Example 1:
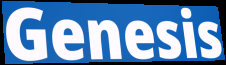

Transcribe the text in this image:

Genesis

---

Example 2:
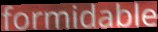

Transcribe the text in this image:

formidable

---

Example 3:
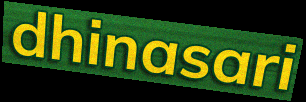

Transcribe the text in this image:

dhinasari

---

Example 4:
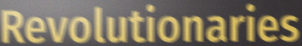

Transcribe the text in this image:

Revolutionaries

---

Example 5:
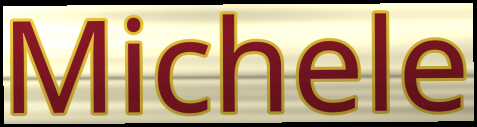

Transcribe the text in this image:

Michele